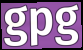
gpg